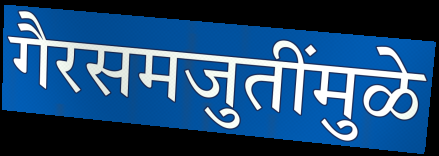
गैरसमजुतींमुळे